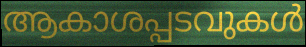
ആകാശപ്പടവുകൾ